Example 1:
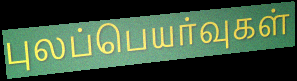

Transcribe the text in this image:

புலப்பெயர்வுகள்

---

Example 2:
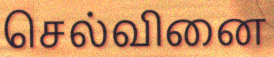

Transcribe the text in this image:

செல்வினை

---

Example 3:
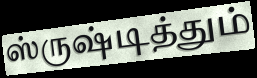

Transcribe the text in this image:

ஸ்ருஷ்டித்தும்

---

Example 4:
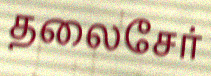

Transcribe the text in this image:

தலைசேர்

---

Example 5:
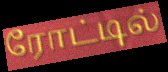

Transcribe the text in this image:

ரோட்டில்